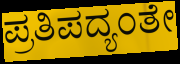
ಪ್ರತಿಪದ್ಯಂತೇ